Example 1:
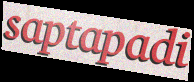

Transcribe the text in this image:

saptapadi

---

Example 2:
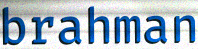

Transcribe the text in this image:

brahman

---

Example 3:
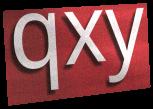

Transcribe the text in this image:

qxy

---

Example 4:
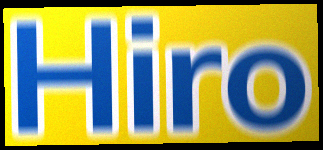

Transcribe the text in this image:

Hiro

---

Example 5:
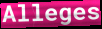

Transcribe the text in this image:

Alleges